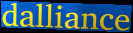
dalliance